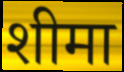
शीमा